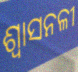
ଶ୍ଵାସନଳୀ